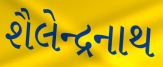
શૈલેન્દ્રનાથ